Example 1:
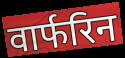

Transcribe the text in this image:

वार्फरिन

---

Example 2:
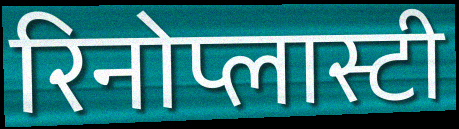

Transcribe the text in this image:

रिनोप्लास्टी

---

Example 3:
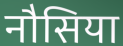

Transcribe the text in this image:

नौसिया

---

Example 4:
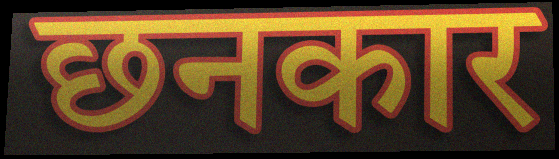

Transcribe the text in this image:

छनकार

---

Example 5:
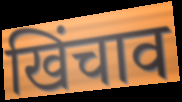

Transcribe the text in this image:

खिंचाव